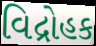
વિદ્રોહક